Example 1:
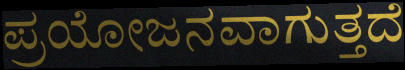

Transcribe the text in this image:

ಪ್ರಯೋಜನವಾಗುತ್ತದೆ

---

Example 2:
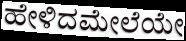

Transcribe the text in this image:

ಹೇಳಿದಮೇಲೆಯೇ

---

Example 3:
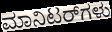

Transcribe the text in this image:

ಮಾನಿಟರ್‌ಗಳು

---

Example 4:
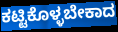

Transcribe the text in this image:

ಕಟ್ಟಿಕೊಳ್ಳಬೇಕಾದ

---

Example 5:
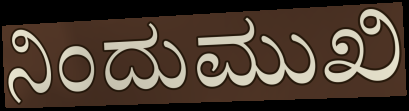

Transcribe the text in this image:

ನಿಂದುಮುಖಿ